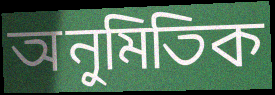
অনুমিতিক